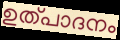
ഉത്പാദനം